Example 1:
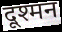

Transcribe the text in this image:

दूश्मन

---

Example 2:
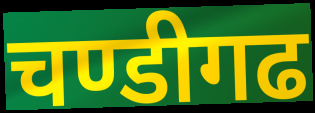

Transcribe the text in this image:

चण्डीगढ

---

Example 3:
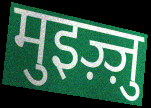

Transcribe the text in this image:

मुइज़्ज़ु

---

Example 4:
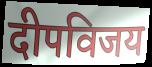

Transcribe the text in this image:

दीपविजय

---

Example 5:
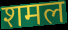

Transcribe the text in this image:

शमल